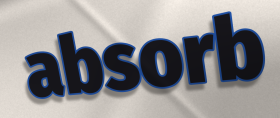
absorb